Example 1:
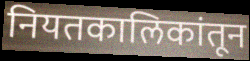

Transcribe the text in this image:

नियतकालिकांतून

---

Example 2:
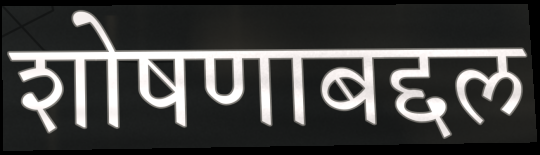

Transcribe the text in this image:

शोषणाबद्दल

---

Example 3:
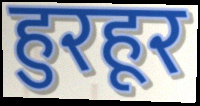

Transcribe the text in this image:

हुरहूर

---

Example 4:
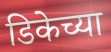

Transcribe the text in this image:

डिकेच्या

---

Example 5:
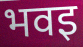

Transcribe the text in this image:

भवइ